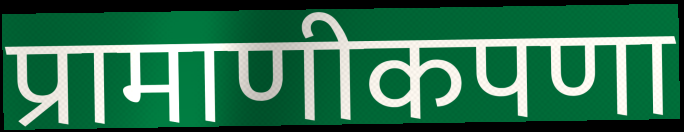
प्रामाणीकपणा